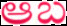
ఆబ